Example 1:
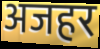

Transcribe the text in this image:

अजहर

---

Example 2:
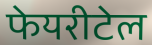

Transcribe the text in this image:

फेयरीटेल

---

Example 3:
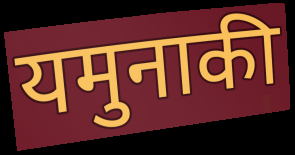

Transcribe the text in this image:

यमुनाकी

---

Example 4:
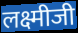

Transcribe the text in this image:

लक्ष्मीजी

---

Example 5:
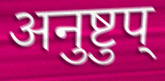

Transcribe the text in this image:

अनुष्टुप्